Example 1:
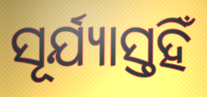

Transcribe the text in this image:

ସୂର୍ଯ୍ୟାସ୍ତହିଁ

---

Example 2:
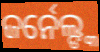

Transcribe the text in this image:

ଜର୍ନେଲ୍ଙ୍କ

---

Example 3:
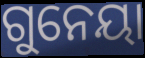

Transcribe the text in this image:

ଗୁନେୟା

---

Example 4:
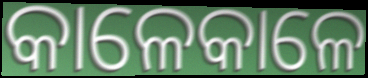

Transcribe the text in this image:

କାଳେକାଳେ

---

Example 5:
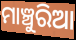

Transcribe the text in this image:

ମାଞ୍ଚୁରିଆ